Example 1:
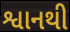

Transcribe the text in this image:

શ્વાનથી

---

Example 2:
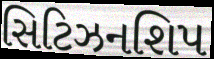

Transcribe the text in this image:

સિટિઝનશિપ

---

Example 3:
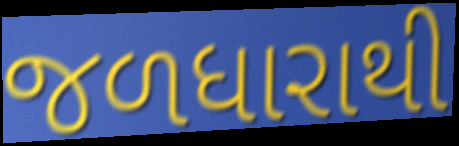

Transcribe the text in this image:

જળધારાથી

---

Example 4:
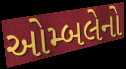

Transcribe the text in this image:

ઓમ્બલેનો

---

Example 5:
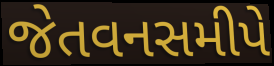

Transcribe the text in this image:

જેતવનસમીપે